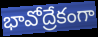
భావోద్రేకంగా